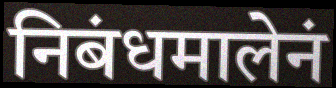
निबंधमालेनं